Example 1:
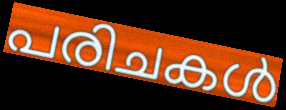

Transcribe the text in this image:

പരിചകൾ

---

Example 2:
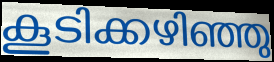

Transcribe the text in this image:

കൂടിക്കഴിഞ്ഞു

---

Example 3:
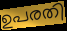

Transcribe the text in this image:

ഉപരതി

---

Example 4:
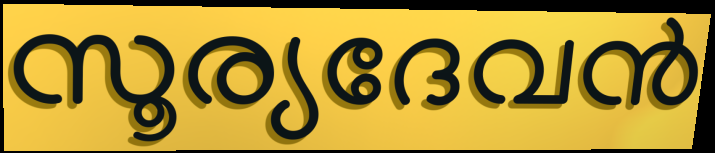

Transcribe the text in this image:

സൂര്യദേവൻ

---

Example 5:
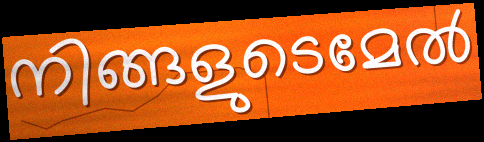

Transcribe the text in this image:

നിങ്ങളുടെമേൽ